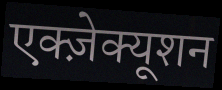
एक्ज़ेक्यूशन